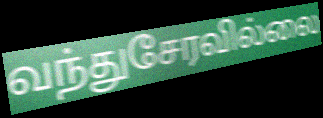
வந்துசேரவில்லை